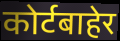
कोर्टबाहेर